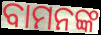
ବାମନଙ୍କ